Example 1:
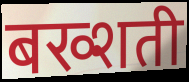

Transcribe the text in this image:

बख्शती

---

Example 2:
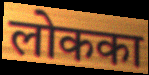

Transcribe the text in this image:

लोकका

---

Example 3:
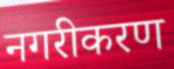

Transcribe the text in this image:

नगरीकरण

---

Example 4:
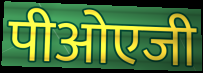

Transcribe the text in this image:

पीओएजी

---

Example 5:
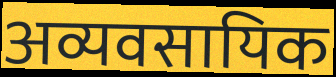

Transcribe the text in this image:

अव्यवसायिक